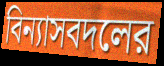
বিন্যাসবদলের